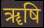
ॠषि